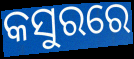
କସୁରରେ